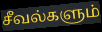
சீவல்களும்